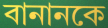
বানানকে